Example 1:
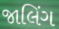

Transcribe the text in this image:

જાલિંગ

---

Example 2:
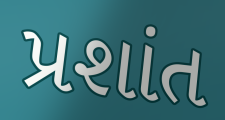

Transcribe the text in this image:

પ્રશાંત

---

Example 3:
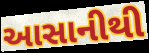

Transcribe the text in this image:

આસાનીથી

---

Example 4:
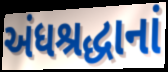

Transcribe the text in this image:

અંધશ્રદ્ધાનાં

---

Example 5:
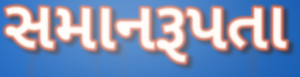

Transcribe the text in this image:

સમાનરૂપતા